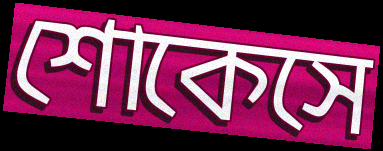
শোকেসে